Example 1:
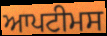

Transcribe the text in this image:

ਆਪਟੀਮਸ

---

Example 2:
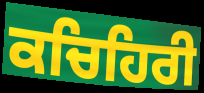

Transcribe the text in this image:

ਕਚਿਹਿਰੀ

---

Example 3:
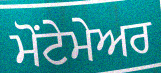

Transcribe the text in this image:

ਮੋਂਟੇਮੇਅਰ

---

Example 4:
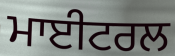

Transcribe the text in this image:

ਮਾਈਟਰਲ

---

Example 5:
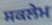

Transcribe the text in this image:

ਸਕਲੇਮ